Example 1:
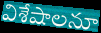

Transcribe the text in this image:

విశేషాలనూ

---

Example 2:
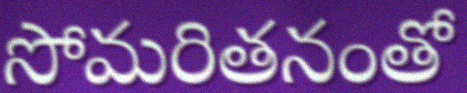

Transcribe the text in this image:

సోమరితనంతో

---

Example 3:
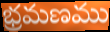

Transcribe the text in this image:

భ్రమణము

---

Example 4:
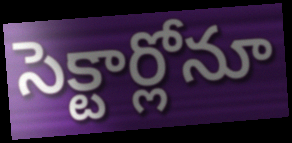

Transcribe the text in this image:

సెక్టార్లోనూ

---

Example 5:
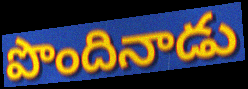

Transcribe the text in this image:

పొందినాడు